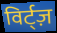
विर्ट्ज़